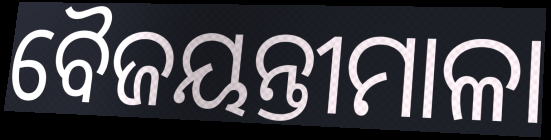
ବୈଜୟନ୍ତୀମାଳା